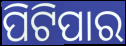
ପିଟିପାର